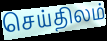
செய்திலம்